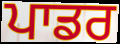
ਪਾਡਰ